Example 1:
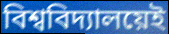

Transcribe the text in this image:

বিশ্ববিদ্যালয়েই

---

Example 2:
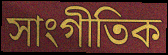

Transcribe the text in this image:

সাংগীতিক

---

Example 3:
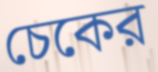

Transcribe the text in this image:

চেকের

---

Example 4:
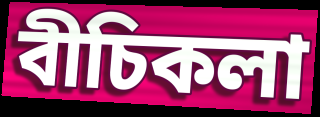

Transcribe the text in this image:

বীচিকলা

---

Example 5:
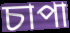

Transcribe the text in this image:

চাপা